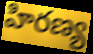
హిరణ్య